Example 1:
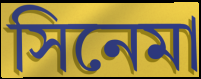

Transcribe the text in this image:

সিনেমা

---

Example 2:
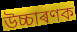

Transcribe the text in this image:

উচ্চাৰণক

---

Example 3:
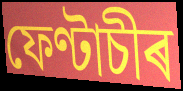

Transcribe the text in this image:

ফেণ্টাচীৰ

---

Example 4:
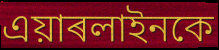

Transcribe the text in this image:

এয়াৰলাইনকে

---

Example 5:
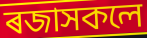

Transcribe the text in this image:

ৰজাসকলে